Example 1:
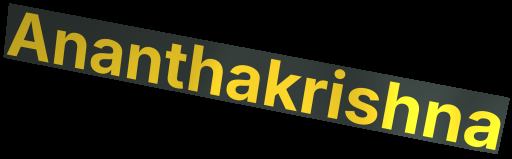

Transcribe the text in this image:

Ananthakrishna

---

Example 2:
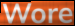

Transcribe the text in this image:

Wore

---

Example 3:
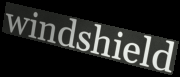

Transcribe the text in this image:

windshield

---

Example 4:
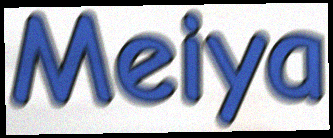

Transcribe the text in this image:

Meiya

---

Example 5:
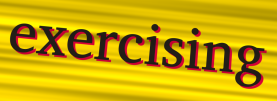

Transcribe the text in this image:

exercising